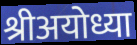
श्रीअयोध्या